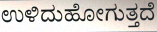
ಉಳಿದುಹೋಗುತ್ತದೆ